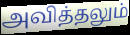
அவித்தலும்